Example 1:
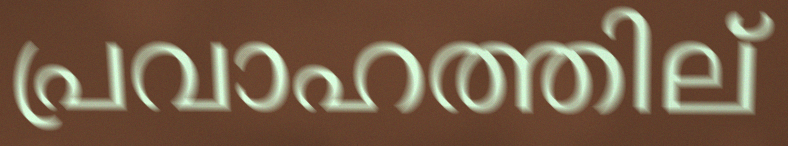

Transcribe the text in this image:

പ്രവാഹത്തില്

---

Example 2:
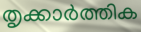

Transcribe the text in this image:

തൃക്കാർത്തിക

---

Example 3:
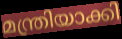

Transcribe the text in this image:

മന്ത്രിയാക്കി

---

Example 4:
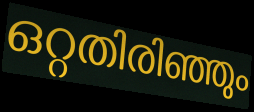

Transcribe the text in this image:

ഒറ്റതിരിഞ്ഞും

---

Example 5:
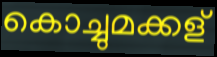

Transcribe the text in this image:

കൊച്ചുമക്കള്